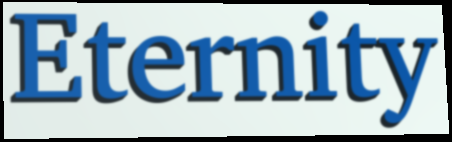
Eternity